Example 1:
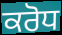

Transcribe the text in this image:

ਕਰੋਧ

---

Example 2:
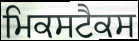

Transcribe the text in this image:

ਮਿਕਸਟੈਕਸ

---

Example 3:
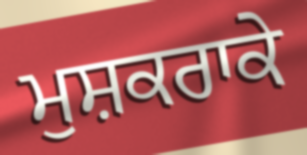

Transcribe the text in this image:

ਮੁਸ਼ਕਰਾਕੇ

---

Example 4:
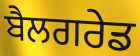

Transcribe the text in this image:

ਬੈਲਗਰੇਡ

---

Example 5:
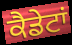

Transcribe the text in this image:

ਕੈਡੇਟਾਂ